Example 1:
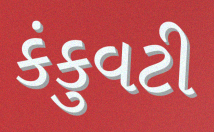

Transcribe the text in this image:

કંકુવટી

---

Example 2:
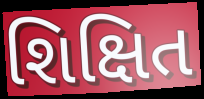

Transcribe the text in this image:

શિક્ષિત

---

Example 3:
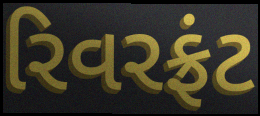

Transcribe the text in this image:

રિવરફ્રંટ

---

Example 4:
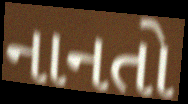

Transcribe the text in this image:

નાનતો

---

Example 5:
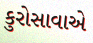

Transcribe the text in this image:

કુરોસાવાએ